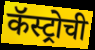
कॅस्ट्रोची